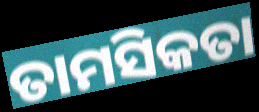
ତାମସିକତା